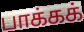
பாக்கக்